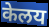
केलय